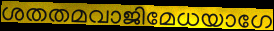
ശതതമവാജിമേധയാഗേ